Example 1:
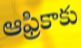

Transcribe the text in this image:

ఆఫ్రికాకు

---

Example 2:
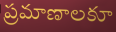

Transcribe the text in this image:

ప్రమాణాలకూ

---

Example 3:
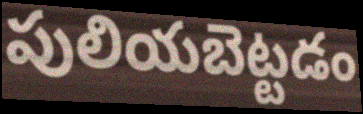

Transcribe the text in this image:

పులియబెట్టడం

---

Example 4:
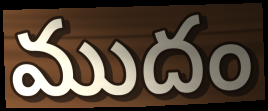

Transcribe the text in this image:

ముదం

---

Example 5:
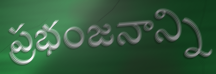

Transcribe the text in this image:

ప్రభంజనాన్ని